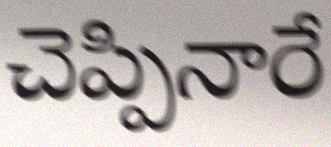
చెప్పినారే